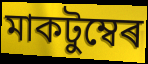
মাকটুম্বেৰ